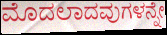
ಮೊದಲಾದವುಗಳನ್ನೇ